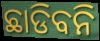
ଛାଡିବନି